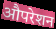
औपरेशन